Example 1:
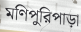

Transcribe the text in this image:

মণিপুরিপাড়া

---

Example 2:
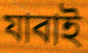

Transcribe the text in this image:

যাবাই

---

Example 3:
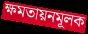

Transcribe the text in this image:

ক্ষমতায়নমূলক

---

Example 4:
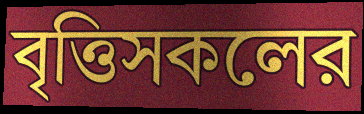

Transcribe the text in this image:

বৃত্তিসকলের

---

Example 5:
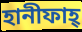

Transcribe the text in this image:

হানীফাহ্